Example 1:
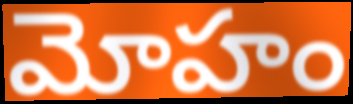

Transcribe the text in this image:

మోహం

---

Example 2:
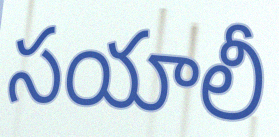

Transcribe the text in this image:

సయాలీ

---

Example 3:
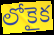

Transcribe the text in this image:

లోకైక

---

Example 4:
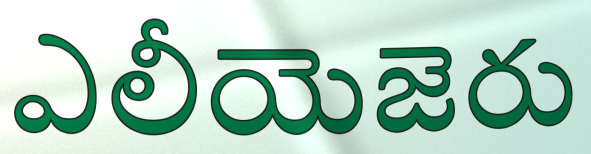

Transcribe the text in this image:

ఎలీయెజెరు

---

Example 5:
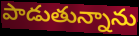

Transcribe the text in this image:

పాడుతున్నాను